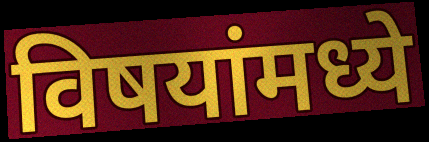
विषयांमध्ये